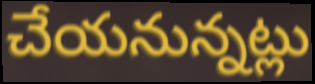
చేయనున్నట్లు